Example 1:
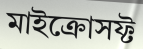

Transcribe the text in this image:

মাইক্রোসফ্ট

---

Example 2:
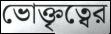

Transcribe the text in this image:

ভোক্তৃত্বের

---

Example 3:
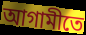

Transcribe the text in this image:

আগামীতে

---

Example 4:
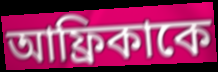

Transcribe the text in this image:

আফ্রিকাকে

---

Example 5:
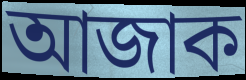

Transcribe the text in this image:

আজাক